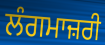
ਲੰਗਮਾਜ਼ਰੀ